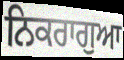
ਨਿਕਰਾਗੁਆ